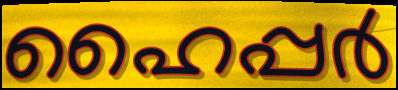
ഹൈപ്പർ